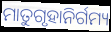
ମାତୁଗୃହାନିର୍ଗମ୍ୟ